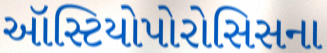
ઑસ્ટિયોપોરોસિસના